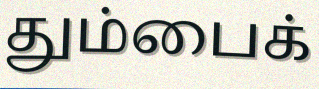
தும்பைக்